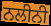
ਨਲੀਨੀ